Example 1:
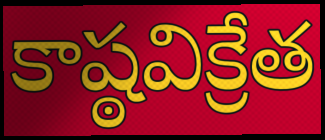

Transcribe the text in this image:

కాష్ఠవిక్రేత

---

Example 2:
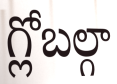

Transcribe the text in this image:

గ్లోబల్గా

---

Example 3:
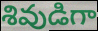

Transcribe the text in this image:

శివుడిగా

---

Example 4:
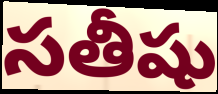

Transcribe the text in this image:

సతీషు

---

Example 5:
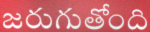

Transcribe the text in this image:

జరుగుతోంది